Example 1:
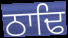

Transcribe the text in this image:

ਠਾਢਿ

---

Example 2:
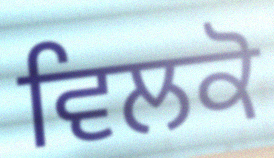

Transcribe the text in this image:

ਵਿਲਕੋ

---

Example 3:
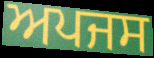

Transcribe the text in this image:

ਅਪਜਸ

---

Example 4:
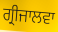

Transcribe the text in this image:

ਗ੍ਰੀਜਾਲਵਾ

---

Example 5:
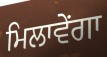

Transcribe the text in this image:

ਮਿਲਾਵੇਂਗਾ